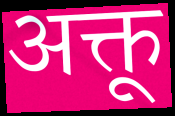
अक्तू